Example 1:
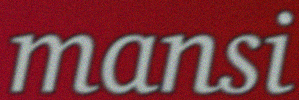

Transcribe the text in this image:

mansi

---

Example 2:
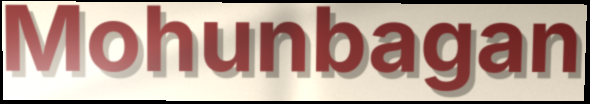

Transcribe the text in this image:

Mohunbagan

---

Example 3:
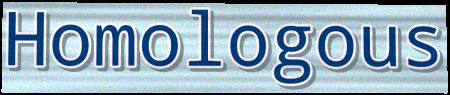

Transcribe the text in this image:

Homologous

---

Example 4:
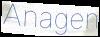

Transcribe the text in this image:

Anagen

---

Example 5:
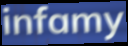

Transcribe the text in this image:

infamy